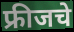
फ्रीजचे